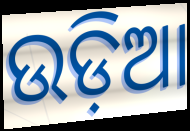
ଉଡ଼ିଆ